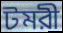
টমরী